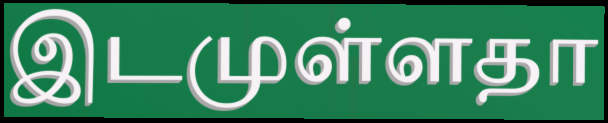
இடமுள்ளதா